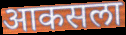
आकसला